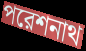
পরেশনাথ